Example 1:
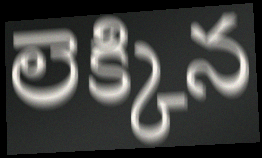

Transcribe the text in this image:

లెక్కిన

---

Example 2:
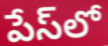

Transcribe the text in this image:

పేస్‌లో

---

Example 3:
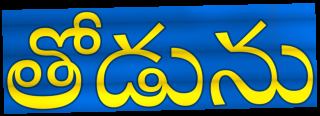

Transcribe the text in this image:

తోడును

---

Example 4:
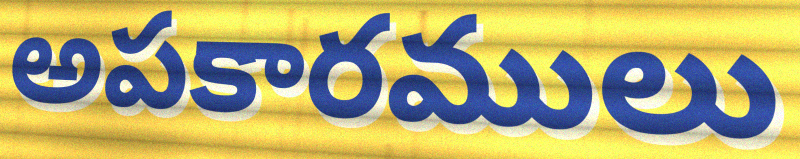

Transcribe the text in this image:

అపకారములు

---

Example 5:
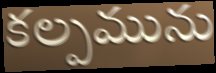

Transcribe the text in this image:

కల్పమును